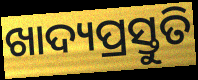
ଖାଦ୍ୟପ୍ରସ୍ତୁତି